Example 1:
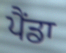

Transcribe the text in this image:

ਪੈਂਡਾ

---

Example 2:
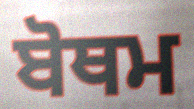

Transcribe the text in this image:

ਬੋਥਮ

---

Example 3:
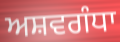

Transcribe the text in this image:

ਅਸ਼ਵਗੰਧਾ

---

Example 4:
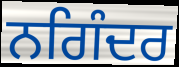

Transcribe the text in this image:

ਨਗਿੰਦਰ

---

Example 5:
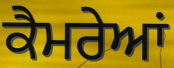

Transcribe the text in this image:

ਕੈਮਰੇਆਂ